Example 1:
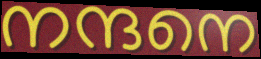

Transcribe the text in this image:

നന്ദനെ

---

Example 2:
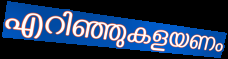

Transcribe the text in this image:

എറിഞ്ഞുകളയണം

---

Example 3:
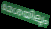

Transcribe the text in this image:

മേശയിലും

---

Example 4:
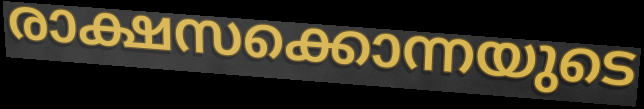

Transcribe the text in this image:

രാക്ഷസക്കൊന്നയുടെ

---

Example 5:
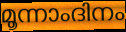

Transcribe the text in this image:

മൂന്നാംദിനം